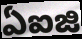
ఏఐజి